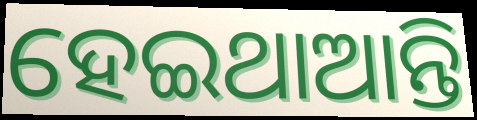
ହେଇଥାଆନ୍ତି